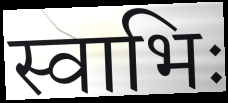
स्वाभिः